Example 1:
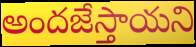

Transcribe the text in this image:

అందజేస్తాయని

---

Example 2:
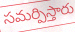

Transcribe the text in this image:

సమర్పిస్తారు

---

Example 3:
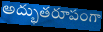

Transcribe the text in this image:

అద్భుతరూపంగా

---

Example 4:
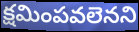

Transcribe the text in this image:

క్షమింపవలెనని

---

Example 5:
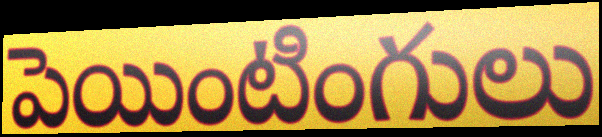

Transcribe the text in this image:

పెయింటింగులు